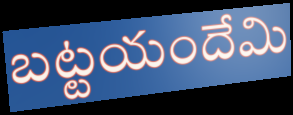
బట్టయందేమి